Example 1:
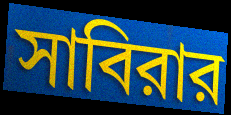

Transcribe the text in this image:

সাবিরার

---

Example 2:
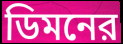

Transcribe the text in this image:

ডিমনের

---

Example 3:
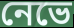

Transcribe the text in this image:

নেভে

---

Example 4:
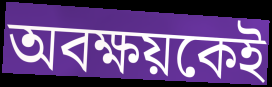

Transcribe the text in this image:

অবক্ষয়কেই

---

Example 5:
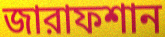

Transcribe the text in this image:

জারাফশান